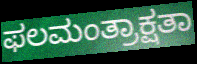
ಫಲಮಂತ್ರಾಕ್ಷತಾ